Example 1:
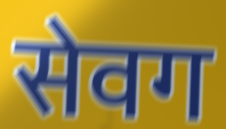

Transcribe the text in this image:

सेवग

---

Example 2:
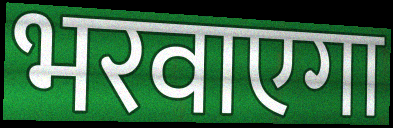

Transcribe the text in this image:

भरवाएगा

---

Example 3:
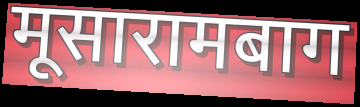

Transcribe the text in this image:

मूसारामबाग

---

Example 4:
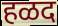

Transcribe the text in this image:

हळद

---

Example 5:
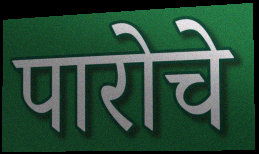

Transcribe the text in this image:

पारोचे